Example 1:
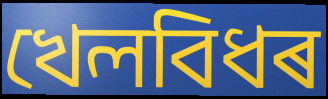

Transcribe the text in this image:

খেলবিধৰ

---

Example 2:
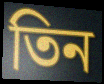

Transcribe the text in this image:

তিন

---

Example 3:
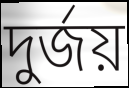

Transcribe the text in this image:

দুৰ্জয়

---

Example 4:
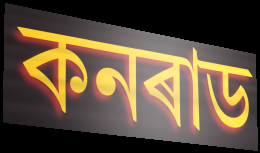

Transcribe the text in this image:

কনৰাড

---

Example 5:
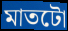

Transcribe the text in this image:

মাতটো